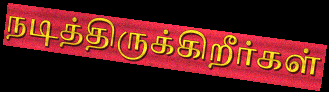
நடித்திருக்கிறீர்கள்